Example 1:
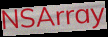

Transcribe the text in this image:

NSArray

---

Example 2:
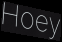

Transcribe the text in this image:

Hoey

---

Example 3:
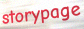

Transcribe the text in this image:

storypage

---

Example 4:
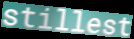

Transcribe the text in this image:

stillest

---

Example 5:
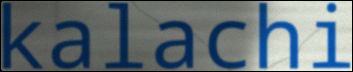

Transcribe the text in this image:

kalachi